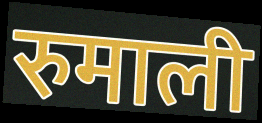
रुमाली